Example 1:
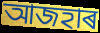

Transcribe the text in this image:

আজহাৰ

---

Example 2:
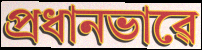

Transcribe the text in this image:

প্ৰধানভাৱে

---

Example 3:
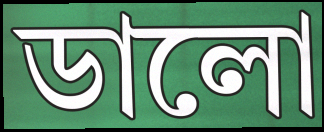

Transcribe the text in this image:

ডালো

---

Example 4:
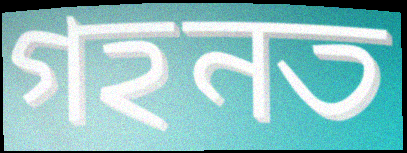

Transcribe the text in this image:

গহনত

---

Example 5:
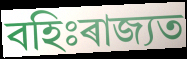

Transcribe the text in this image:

বহিঃৰাজ্যত